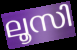
ലൂസി